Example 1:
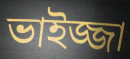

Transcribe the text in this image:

ভাইজ্জা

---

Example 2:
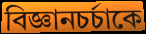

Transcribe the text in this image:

বিজ্ঞানচর্চাকে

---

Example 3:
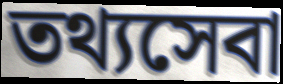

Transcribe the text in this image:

তথ্যসেবা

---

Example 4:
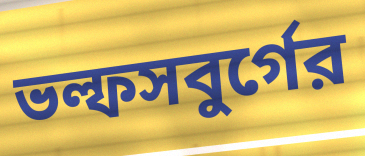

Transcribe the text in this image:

ভল্ফসবুর্গের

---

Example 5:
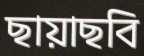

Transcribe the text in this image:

ছায়াছবি